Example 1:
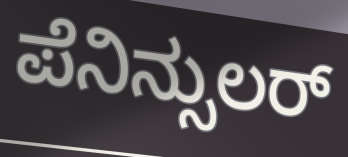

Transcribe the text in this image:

ಪೆನಿನ್ಸುಲರ್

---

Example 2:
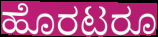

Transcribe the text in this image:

ಹೊರಟರೂ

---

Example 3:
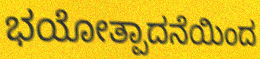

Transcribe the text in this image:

ಭಯೋತ್ಪಾದನೆಯಿಂದ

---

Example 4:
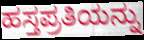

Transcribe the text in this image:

ಹಸ್ತಪ್ರತಿಯನ್ನು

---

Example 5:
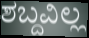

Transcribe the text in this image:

ಶಬ್ದವಿಲ್ಲ